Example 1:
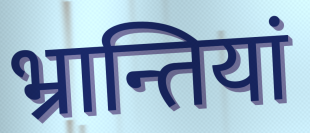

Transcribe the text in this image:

भ्रान्तियां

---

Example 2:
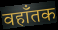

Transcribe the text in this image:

वहाँतक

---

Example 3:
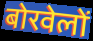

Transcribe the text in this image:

बोरवेलों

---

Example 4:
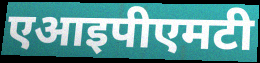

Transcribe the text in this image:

एआइपीएमटी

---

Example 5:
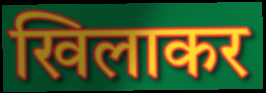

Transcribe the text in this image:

खिलाकर